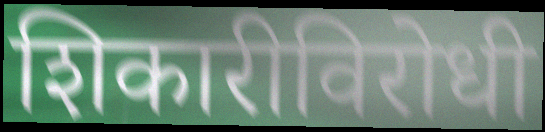
शिकारीविरोधी